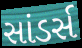
સાંડર્સ